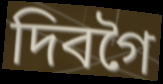
দিবগৈ